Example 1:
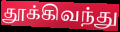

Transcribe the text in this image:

தூக்கிவந்து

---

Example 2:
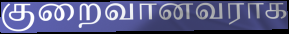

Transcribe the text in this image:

குறைவானவராக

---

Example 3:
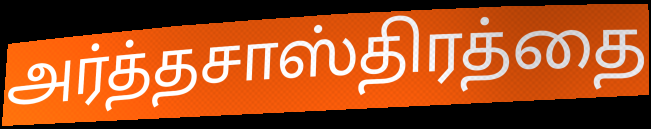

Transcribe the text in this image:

அர்த்தசாஸ்திரத்தை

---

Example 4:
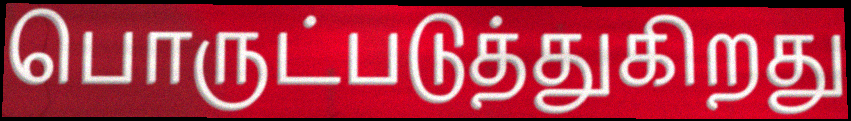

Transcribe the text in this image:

பொருட்படுத்துகிறது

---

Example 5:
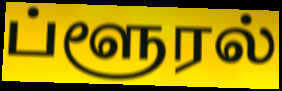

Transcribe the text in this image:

ப்ளூரல்